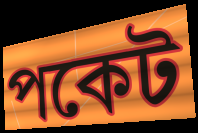
পকেট